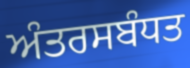
ਅੰਤਰਸਬੰਧਤ